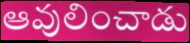
ఆవులించాడు